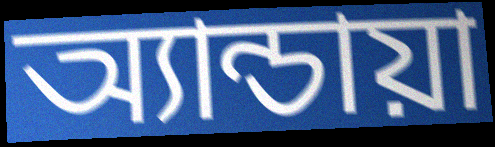
অ্যান্ডায়া